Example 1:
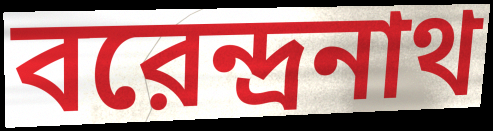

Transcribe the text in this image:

বরেন্দ্রনাথ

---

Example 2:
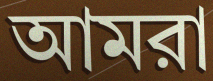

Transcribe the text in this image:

আমরা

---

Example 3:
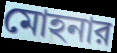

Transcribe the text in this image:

মোহনার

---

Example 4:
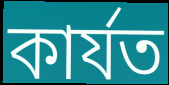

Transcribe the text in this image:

কার্যত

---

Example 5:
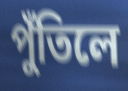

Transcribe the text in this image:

পুঁতিলে